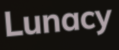
Lunacy